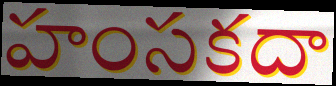
హంసకదా